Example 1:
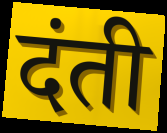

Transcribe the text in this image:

दंती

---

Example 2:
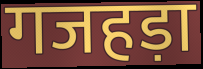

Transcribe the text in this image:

गजहड़ा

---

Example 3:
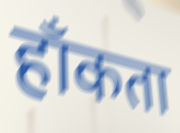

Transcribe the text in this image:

हाँकता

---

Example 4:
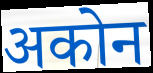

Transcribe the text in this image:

अकोन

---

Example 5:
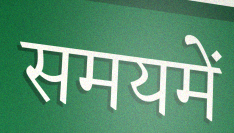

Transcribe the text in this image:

समयमें